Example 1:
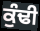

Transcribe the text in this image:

ਕੁੰਢੀ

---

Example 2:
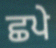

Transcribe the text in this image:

ਛਪੇ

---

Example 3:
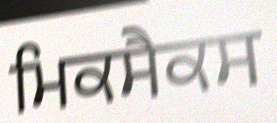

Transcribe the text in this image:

ਮਿਕਸੈਕਸ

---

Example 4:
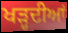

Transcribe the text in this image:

ਖੜ੍ਹਦੀਆਂ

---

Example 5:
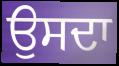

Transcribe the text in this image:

ਉਸਦਾ